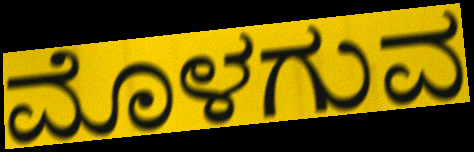
ಮೊಳಗುವ